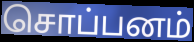
சொப்பனம்